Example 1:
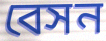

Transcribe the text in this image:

বেসন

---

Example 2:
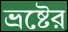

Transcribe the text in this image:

ভ্রষ্টের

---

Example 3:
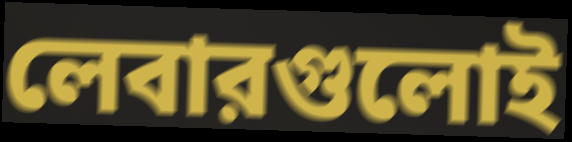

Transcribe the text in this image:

লেবারগুলোই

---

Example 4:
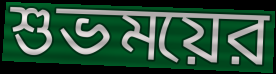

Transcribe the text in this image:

শুভময়ের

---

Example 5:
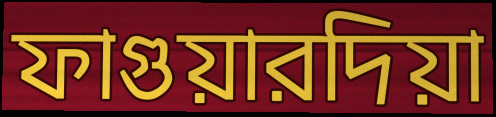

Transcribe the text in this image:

ফাগুয়ারদিয়া